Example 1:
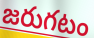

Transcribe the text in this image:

జరుగటం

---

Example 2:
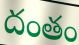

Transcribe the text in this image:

దంతం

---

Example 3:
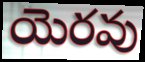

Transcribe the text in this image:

యెరవు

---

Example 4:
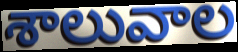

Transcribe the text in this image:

శాలువాల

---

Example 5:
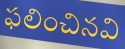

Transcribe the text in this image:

ఫలించినవి